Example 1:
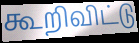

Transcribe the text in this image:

கூறிவிட்டு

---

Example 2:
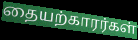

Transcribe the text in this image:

தையற்காரர்கள்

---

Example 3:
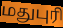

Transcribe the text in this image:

மதுபுரி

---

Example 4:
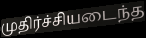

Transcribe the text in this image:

முதிர்ச்சியடைந்த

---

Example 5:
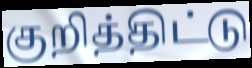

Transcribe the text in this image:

குறித்திட்டு